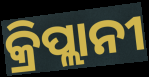
କ୍ରିପ୍ଲାନୀ